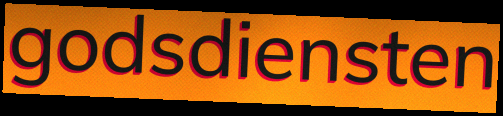
godsdiensten